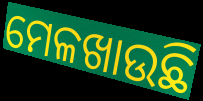
ମେଳଖାଉଛି